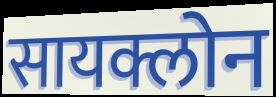
सायक्लोन